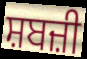
ਸ਼ਬਜ਼ੀ